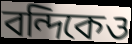
বন্দিকেও